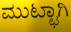
ಮುಟ್ಟಾಗಿ